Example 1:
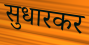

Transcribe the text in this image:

सुधारकर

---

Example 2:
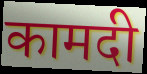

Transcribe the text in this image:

कामदी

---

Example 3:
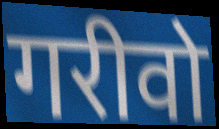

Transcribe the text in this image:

गरीवो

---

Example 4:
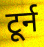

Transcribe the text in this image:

टूर्न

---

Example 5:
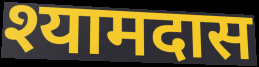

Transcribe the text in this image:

श्यामदास